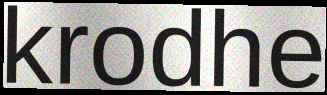
krodhe